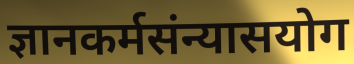
ज्ञानकर्मसंन्यासयोग